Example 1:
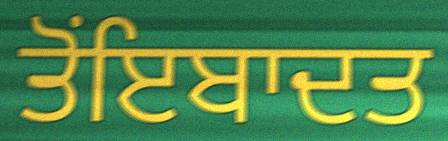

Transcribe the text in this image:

ਤੋਂਇਬਾਦਤ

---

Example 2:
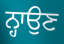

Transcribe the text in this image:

ਨ੍ਹਾਉਣ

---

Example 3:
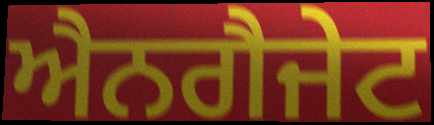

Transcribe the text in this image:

ਐਨਗੈਜੇਟ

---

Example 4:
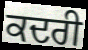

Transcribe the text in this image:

ਕਦਰੀ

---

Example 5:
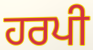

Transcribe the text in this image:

ਹਰਪੀ